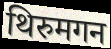
थिरुमगन